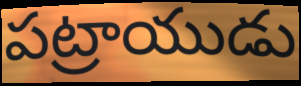
పట్రాయుడు